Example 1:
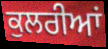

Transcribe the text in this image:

ਕੁਲਰੀਆਂ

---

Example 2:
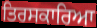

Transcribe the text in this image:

ਤਿਰਸਕਾਰਿਆ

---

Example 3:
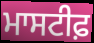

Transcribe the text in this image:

ਮਾਸਟੀਫ਼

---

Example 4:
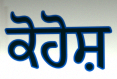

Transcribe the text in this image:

ਕੋਹੋਸ਼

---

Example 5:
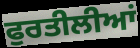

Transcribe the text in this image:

ਫੁਰਤੀਲੀਆਂ